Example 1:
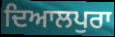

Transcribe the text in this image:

ਦਿਆਲਪੁਰਾ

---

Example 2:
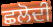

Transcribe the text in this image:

ਛਲੋਦੀ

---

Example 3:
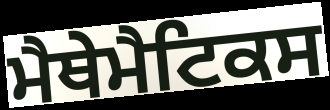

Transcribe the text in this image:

ਮੈਥੇਮੈਟਿਕਸ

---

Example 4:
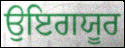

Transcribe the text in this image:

ਉਇਗਯੂਰ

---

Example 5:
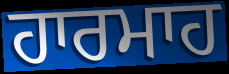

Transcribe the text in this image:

ਹਾਰਮਾਹ